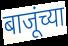
बाजूंच्या